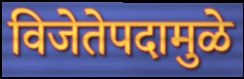
विजेतेपदामुळे